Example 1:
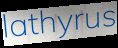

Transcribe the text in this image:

lathyrus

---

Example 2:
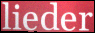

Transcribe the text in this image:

lieder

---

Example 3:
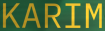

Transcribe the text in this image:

KARIM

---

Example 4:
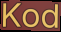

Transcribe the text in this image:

Kod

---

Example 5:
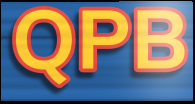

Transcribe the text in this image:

QPB